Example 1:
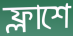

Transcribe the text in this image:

ফ্লাশে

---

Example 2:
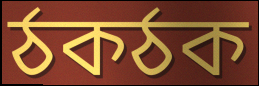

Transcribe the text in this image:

ঠকঠক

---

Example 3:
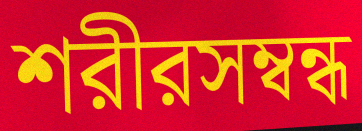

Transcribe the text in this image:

শরীরসম্বন্ধ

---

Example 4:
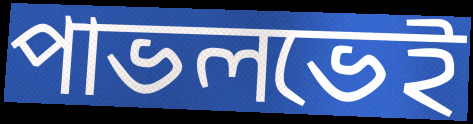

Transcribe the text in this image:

পাভলভেই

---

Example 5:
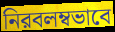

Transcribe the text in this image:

নিরবলম্বভাবে